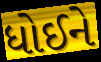
ધોઈને